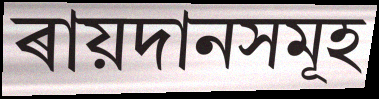
ৰায়দানসমূহ